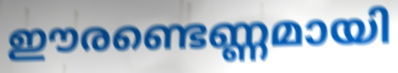
ഈരണ്ടെണ്ണമായി